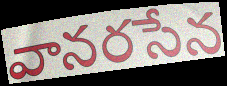
వానరసేన